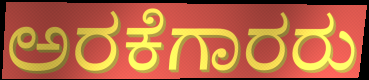
ಅರಕೆಗಾರರು